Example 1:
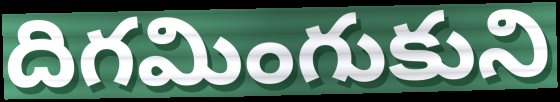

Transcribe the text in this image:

దిగమింగుకుని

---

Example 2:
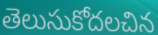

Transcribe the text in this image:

తెలుసుకోదలచిన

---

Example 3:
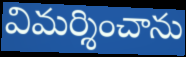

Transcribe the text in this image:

విమర్శించాను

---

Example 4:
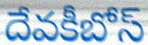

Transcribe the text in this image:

దేవకీబోస్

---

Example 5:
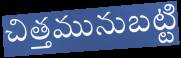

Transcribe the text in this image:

చిత్తమునుబట్టి